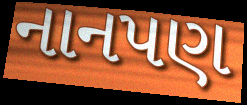
નાનપણ